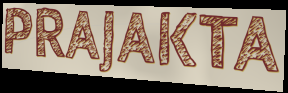
PRAJAKTA